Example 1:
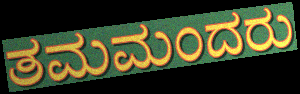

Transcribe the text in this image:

ತಮಮಂದರು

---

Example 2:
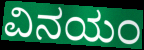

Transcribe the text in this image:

ವಿನಯಂ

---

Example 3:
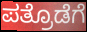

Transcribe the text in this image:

ಪತ್ರೊಡೆಗೆ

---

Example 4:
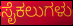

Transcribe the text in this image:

ಸೈಕಲುಗಳು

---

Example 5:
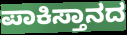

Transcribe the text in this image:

ಪಾಕಿಸ್ತಾನದ